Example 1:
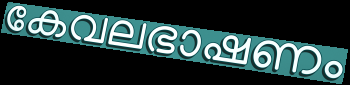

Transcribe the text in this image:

കേവലഭാഷണം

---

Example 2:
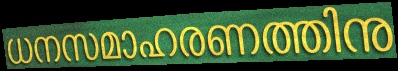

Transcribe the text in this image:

ധനസമാഹരണത്തിനു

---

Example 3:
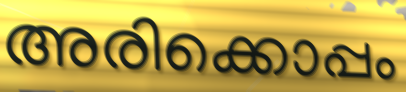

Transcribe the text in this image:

അരിക്കൊപ്പം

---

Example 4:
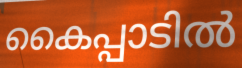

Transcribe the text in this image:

കൈപ്പാടിൽ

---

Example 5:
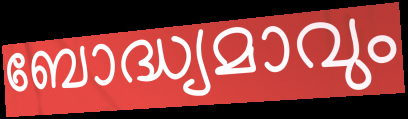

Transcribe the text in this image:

ബോദ്ധ്യമാവും